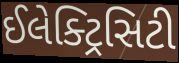
ઈલેક્ટ્રિસિટી